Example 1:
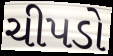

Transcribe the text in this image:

ચીપડો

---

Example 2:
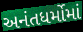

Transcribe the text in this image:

અનંતધર્મોમાં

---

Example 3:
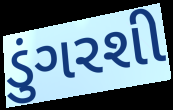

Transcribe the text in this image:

ડુંગરશી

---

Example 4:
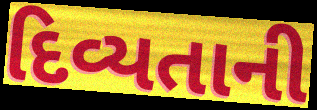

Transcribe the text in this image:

દિવ્યતાની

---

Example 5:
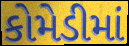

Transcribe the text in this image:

કોમેડીમાં